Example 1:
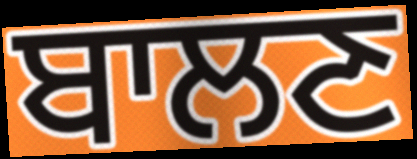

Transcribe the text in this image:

ਬਾਲਣ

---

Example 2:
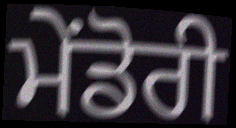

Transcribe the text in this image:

ਮੇਂਡੋਰੀ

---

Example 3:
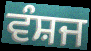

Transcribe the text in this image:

ਵੰਸ਼ਜ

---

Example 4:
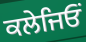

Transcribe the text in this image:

ਕਲੇਜਿਓਂ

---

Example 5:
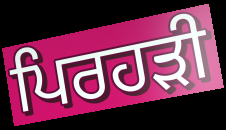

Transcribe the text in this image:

ਪਿਰਹੜੀ